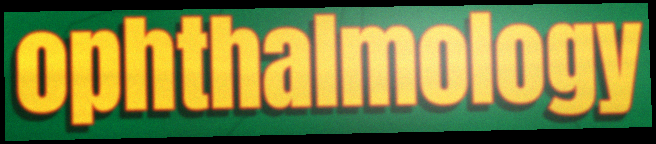
ophthalmology